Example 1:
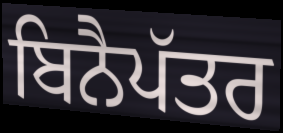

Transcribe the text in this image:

ਬਿਨੈਪੱਤਰ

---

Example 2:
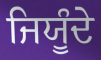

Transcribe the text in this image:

ਜਿਯੂੰਦੇ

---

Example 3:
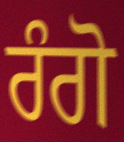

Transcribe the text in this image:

ਰੰਗੋ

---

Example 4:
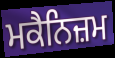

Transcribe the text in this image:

ਮਕੈਨਿਜ਼ਮ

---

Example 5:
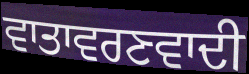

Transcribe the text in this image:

ਵਾਤਾਵਰਣਵਾਦੀ